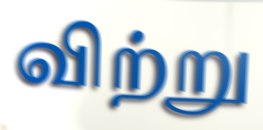
விற்று